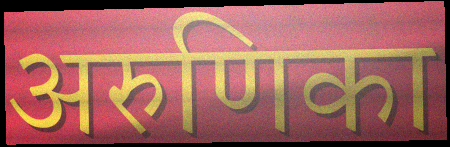
अरुणिका